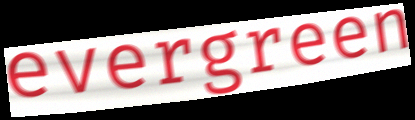
evergreen